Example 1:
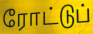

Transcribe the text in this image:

ரோட்டுப்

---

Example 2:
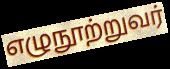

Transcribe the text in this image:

எழுநூற்றுவர்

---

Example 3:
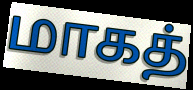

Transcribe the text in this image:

மாகத்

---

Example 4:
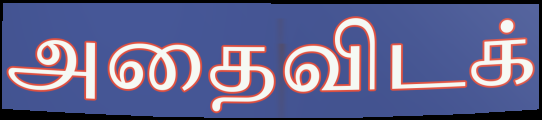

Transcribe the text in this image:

அதைவிடக்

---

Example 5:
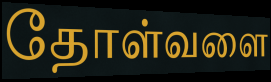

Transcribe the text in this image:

தோள்வளை